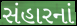
સંહારનાં